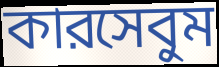
কারসেবুম